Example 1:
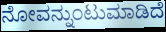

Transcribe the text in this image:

ನೋವನ್ನುಂಟುಮಾಡಿದೆ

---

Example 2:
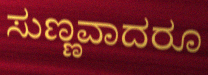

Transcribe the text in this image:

ಸುಣ್ಣವಾದರೂ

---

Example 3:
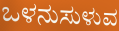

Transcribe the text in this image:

ಒಳನುಸುಳುವ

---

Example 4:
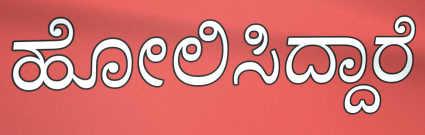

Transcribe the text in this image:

ಹೋಲಿಸಿದ್ದಾರೆ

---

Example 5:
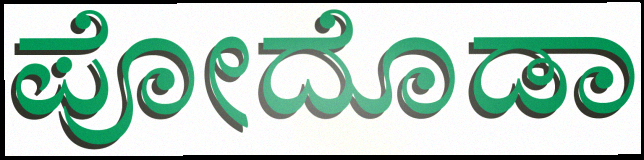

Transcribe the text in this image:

ಪೋದೊಡಾ